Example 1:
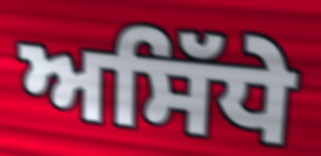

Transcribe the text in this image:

ਅਸਿੱਧੇ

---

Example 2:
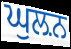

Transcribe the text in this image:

ਘੁਲ਼ਨ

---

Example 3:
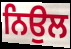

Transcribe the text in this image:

ਨਿਉਲ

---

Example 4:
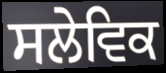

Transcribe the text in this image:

ਸਲੇਵਿਕ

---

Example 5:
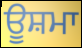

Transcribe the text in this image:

ਊਸ਼ਮਾ